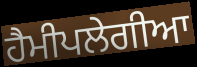
ਹੈਮੀਪਲੇਗੀਆ